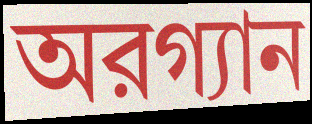
অরগ্যান